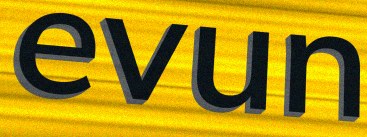
evun